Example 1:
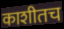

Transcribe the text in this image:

काशीतच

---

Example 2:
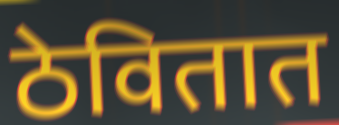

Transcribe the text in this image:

ठेवितात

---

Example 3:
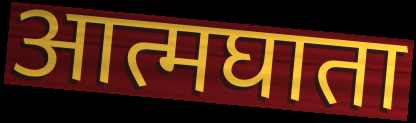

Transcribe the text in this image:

आत्मघाता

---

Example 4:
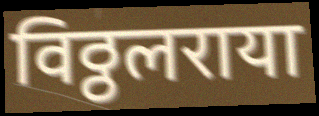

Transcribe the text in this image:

विठ्ठलराया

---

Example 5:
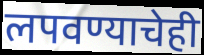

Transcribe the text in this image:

लपवण्याचेही